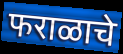
फराळाचे